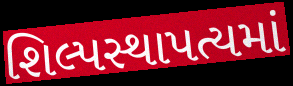
શિલ્પસ્થાપત્યમાં